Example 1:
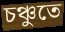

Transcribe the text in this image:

চঞ্চুতে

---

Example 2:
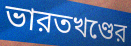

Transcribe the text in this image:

ভারতখণ্ডের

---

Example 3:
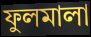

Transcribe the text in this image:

ফুলমালা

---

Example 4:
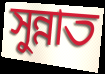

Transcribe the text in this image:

সুন্নাত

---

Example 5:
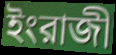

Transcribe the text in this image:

ইংরাজী